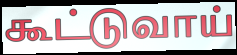
கூட்டுவாய்